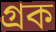
গ্রক